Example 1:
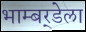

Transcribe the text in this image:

भाम्बर्डेला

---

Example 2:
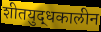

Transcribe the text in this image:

शीतयुद्धकालीन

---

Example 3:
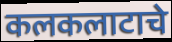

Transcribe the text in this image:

कलकलाटाचे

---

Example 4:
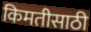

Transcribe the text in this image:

किमतीसाठी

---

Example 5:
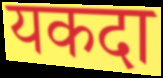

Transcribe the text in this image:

यकदा